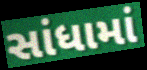
સાંધામાં